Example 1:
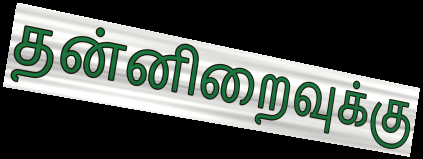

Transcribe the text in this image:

தன்னிறைவுக்கு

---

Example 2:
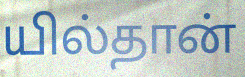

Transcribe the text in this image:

யில்தான்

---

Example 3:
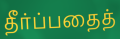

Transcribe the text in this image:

தீர்ப்பதைத்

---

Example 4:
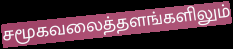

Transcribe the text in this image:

சமூகவலைத்தளங்களிலும்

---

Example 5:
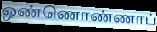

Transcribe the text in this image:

ஒண்ணொண்ணாப்